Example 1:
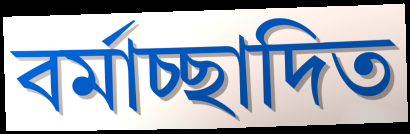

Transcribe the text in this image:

বর্মাচ্ছাদিত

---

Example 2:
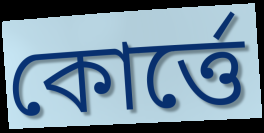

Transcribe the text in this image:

কোর্ত্তে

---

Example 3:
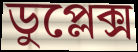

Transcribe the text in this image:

ডুপ্লেক্স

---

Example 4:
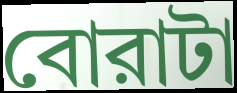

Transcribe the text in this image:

বোরাটা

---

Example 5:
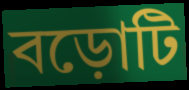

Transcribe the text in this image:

বড়োটি